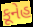
કૂનેહ